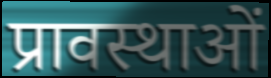
प्रावस्थाओं